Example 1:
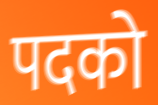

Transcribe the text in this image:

पदको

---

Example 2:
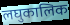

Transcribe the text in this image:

लघुकालिक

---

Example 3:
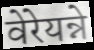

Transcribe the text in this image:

वेरेयन्ने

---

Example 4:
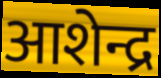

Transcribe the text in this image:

आशेन्द्र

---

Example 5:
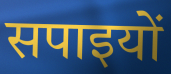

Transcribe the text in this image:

सपाइयों